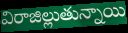
విరాజిల్లుతున్నాయి